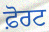
ਫ਼ੋਰਟ